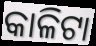
କାଳିଟା